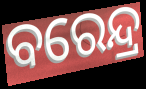
ବରେନ୍ଦ୍ର